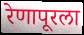
रेणापूरला